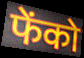
फेंको